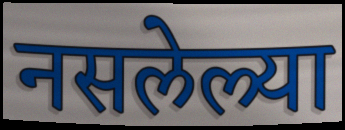
नसलेल्या